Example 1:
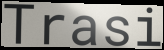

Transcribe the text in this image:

Trasi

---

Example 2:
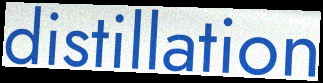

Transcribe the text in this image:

distillation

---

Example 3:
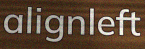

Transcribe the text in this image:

alignleft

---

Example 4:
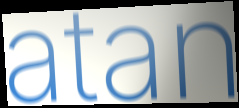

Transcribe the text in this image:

atan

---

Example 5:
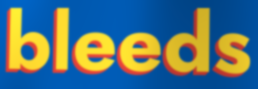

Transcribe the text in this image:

bleeds